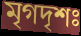
মৃগদৃশঃ